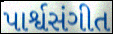
પાર્શ્વસંગીત